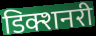
डिक्शनरी